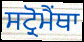
ਸਟ੍ਰੋਮੈਂਥਾ